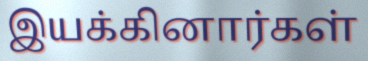
இயக்கினார்கள்